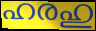
ഹരഹു